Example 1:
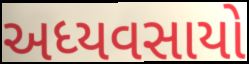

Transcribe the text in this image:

અધ્યવસાયો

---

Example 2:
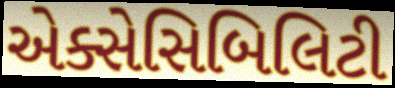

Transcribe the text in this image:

એક્સેસિબિલિટી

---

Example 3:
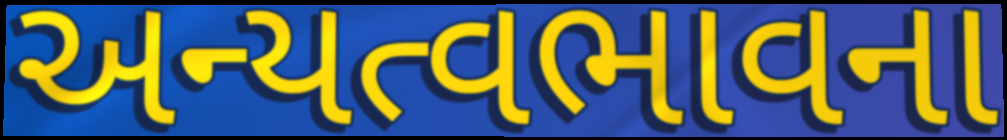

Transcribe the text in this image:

અન્યત્વભાવના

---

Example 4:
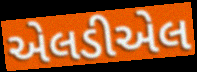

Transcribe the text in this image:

એલડીએલ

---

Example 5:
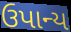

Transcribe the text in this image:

ઉપાન્ય